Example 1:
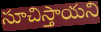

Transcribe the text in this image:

సూచిస్తాయని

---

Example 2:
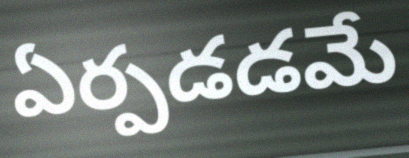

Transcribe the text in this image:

ఏర్పడడమే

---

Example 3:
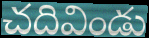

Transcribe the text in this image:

చదివిండు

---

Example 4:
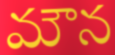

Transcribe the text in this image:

మౌన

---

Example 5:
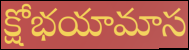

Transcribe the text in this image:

క్షోభయామాస